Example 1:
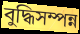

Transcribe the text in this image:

বুদ্ধিসম্পন্ন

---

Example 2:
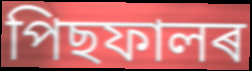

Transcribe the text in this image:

পিছফালৰ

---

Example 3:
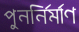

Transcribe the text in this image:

পুনৰ্নিৰ্মাণ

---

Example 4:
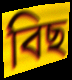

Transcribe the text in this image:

বিছ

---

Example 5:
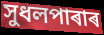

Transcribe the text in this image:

সুধলপাৰাৰ